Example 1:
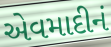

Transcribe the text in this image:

એવમાદીનં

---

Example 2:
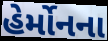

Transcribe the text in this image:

હેર્મોનના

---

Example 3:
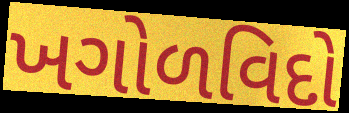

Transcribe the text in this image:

ખગોળવિદો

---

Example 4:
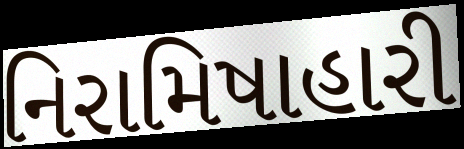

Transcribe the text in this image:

નિરામિષાહારી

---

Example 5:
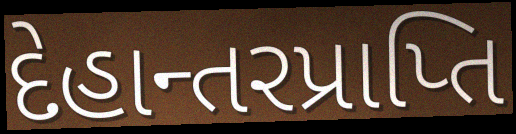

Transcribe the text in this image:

દેહાન્તરપ્રાપ્તિ